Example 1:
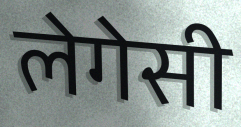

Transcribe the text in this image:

लेगेसी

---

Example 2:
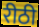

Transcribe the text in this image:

रीठी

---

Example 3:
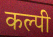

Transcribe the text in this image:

कल्पी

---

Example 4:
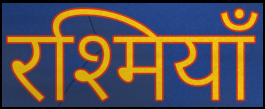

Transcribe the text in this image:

रश्मियाँ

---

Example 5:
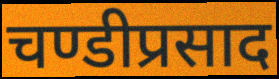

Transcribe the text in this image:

चण्डीप्रसाद